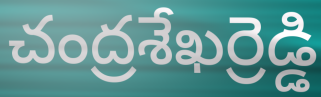
చంద్రశేఖర్రెడ్డి